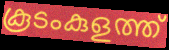
കൂടംകുളത്ത്